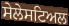
ਸੇਲੇਸਟਿਅਲ